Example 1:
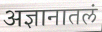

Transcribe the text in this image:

अज्ञानातलं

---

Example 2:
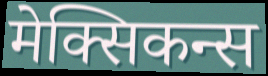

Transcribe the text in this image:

मेक्सिकन्स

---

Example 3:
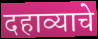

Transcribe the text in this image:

दहाव्याचे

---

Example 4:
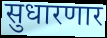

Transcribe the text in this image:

सुधारणार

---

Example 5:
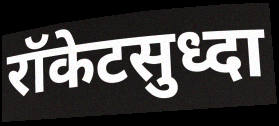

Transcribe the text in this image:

रॉकेटसुध्दा